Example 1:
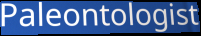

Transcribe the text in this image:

Paleontologist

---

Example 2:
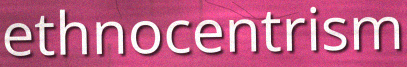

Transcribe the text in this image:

ethnocentrism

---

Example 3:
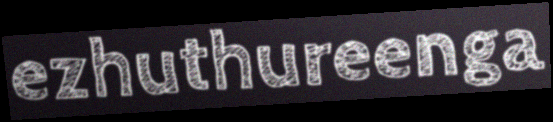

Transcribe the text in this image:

ezhuthureenga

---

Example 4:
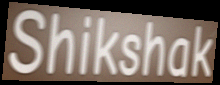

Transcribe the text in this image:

Shikshak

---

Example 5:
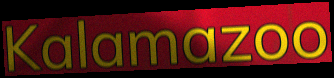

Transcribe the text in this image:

Kalamazoo